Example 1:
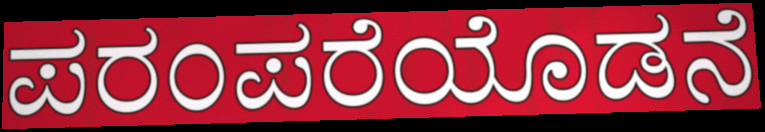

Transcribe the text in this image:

ಪರಂಪರೆಯೊಡನೆ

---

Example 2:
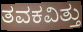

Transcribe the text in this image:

ತವಕವಿತ್ತು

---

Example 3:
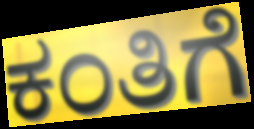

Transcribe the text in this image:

ಕಂತಿಗೆ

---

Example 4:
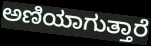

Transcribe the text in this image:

ಅಣಿಯಾಗುತ್ತಾರೆ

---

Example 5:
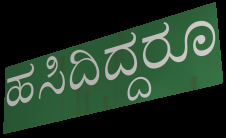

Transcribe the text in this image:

ಹಸಿದಿದ್ದರೂ